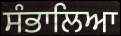
ਸੰਭਾਲਿਆ